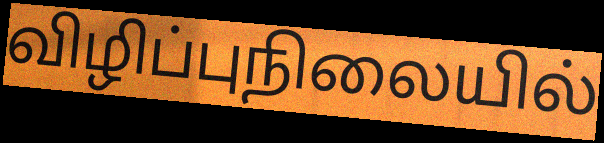
விழிப்புநிலையில்